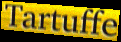
Tartuffe